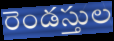
రెండస్తుల